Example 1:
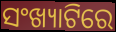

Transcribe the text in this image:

ସଂଖ୍ୟାଟିରେ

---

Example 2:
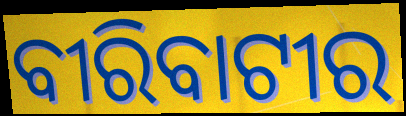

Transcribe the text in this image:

ବୀରିବାଟୀର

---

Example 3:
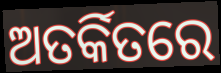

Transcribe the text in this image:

ଅତର୍କିତରେ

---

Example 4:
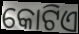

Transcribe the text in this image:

କୋଟିଏ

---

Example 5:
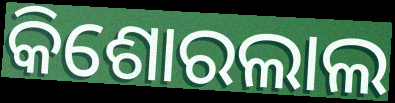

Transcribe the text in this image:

କିଶୋରଲାଲ